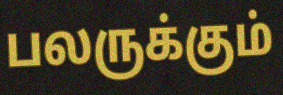
பலருக்கும்